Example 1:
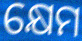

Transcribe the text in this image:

କ୍ଷେମ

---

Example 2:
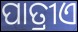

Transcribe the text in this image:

ପାତ୍ରୀଏ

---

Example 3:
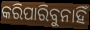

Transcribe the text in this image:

କରିପାରିବୁନାହିଁ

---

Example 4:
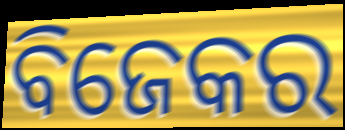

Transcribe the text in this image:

ବିଜେକର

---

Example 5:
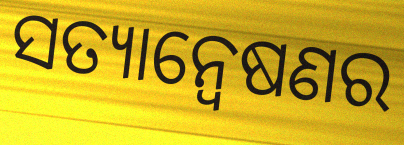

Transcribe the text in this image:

ସତ୍ୟାନ୍ୱେଷଣର